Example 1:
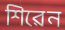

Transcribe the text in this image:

শিৱেন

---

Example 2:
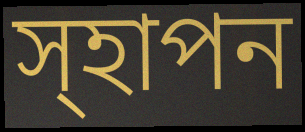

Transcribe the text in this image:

স্হাপন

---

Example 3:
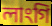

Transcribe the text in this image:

লাংগি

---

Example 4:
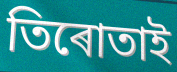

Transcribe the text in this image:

তিৰোতাই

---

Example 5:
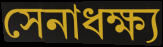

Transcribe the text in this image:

সেনাধক্ষ্য